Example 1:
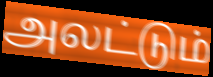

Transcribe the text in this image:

அலட்டும்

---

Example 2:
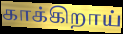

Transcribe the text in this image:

காக்கிறாய்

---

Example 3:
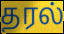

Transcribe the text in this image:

தரல்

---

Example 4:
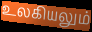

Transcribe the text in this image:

உலகியலும்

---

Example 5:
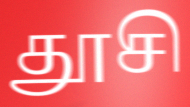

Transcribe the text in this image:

தூசி